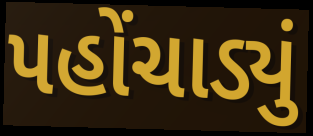
પહોંચાડ્યું